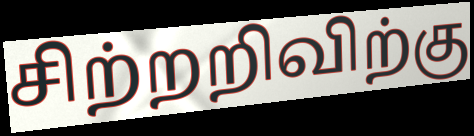
சிற்றறிவிற்கு